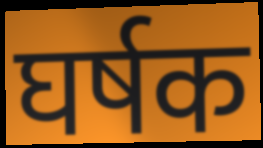
घर्षक